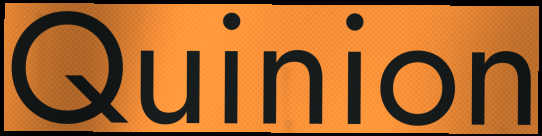
Quinion